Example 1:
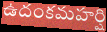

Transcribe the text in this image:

ఉదంకమహర్షి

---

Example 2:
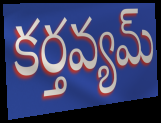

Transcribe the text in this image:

కర్తవ్యమ్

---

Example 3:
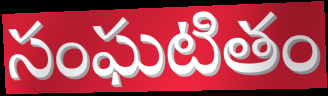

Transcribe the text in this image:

సంఘటితం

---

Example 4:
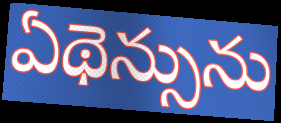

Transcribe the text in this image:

ఏథెన్సును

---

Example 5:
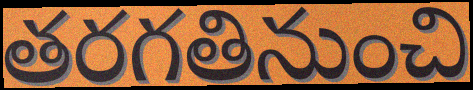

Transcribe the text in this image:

తరగతినుంచి